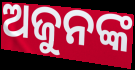
ଅଜୁନଙ୍କ